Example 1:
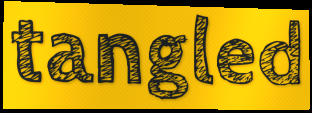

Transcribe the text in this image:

tangled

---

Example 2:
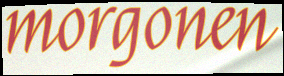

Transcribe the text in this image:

morgonen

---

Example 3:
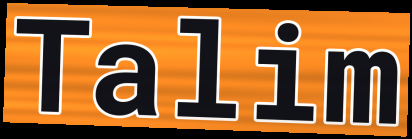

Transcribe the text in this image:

Talim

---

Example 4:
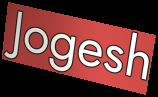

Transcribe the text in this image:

Jogesh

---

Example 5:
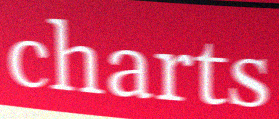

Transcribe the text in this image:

charts